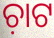
ଚ଼ାଟ